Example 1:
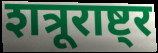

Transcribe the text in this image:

शत्रूराष्ट्र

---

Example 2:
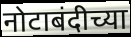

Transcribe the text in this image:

नोटाबंदीच्या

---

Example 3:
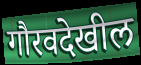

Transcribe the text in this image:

गौरवदेखील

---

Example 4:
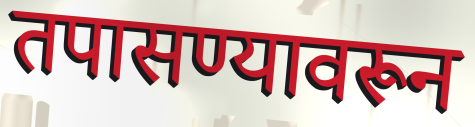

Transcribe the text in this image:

तपासण्यावरून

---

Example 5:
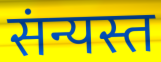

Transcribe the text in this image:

संन्यस्त